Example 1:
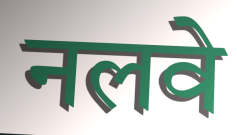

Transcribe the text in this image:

नलवे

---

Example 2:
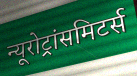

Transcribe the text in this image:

न्यूरोट्रांसमिटर्स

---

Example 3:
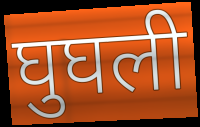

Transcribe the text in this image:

घुघली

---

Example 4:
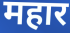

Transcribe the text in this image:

महार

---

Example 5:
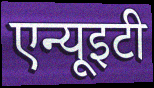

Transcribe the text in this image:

एन्यूइटी